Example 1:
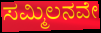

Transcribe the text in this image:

ಸಮ್ಮಿಲನವೇ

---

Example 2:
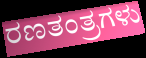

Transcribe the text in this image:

ರಣತಂತ್ರಗಳು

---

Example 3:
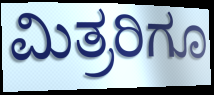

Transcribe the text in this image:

ಮಿತ್ರರಿಗೂ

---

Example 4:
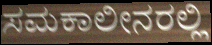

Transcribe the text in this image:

ಸಮಕಾಲೀನರಲ್ಲಿ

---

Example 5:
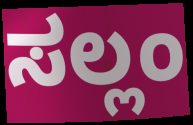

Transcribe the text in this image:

ಸಲ್ಲಂ